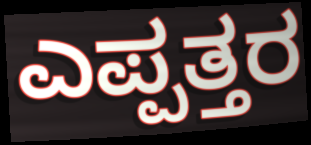
ಎಪ್ಪತ್ತರ